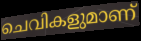
ചെവികളുമാണ്